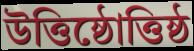
উত্তিষ্ঠোত্তিষ্ঠ